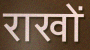
राखों